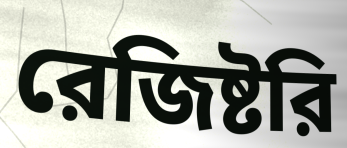
রেজিষ্টরি